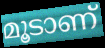
മൂടാണ്